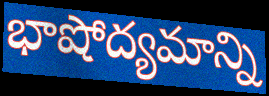
భాషోద్యమాన్ని